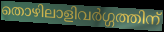
തൊഴിലാളിവർഗ്ഗത്തിന്